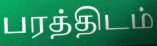
பரத்திடம்